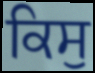
ਕਿਸੁ